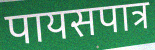
पायसपात्र